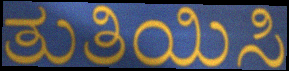
ತುತಿಯಿಸಿ